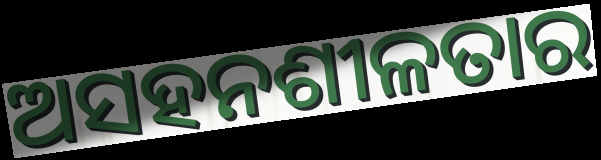
ଅସହନଶୀଳତାର